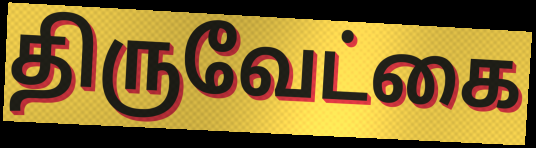
திருவேட்கை